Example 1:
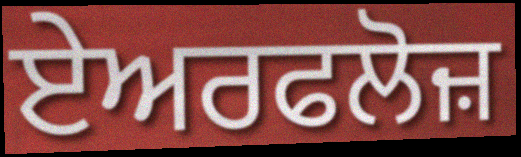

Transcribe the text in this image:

ਏਅਰਫਲੋਜ਼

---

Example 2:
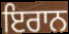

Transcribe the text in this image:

ਇਰਾਨ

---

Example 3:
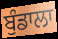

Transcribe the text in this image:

ਬੁੰਡਾਲਾ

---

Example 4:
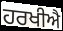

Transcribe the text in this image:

ਹਰਖੀਐ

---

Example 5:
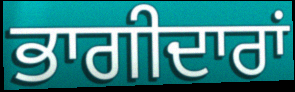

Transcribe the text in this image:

ਭਾਗੀਦਾਰਾਂ